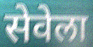
सेवेला